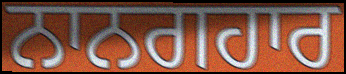
ਨਾਨਗਹਾਰ